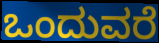
ಒಂದುವರೆ